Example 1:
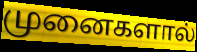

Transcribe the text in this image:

முனைகளால்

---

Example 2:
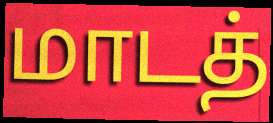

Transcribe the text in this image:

மாடத்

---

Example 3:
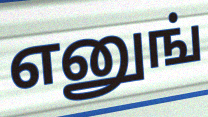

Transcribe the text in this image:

எனுங்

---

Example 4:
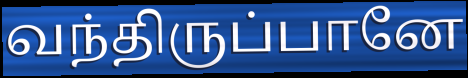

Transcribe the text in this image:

வந்திருப்பானே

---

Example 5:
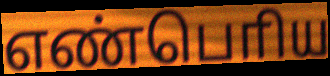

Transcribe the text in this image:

எண்பெரிய